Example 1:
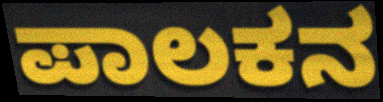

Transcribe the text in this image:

ಪಾಲಕನ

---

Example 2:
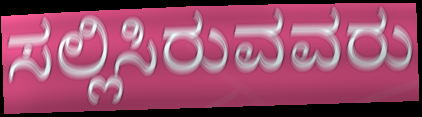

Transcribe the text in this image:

ಸಲ್ಲಿಸಿರುವವರು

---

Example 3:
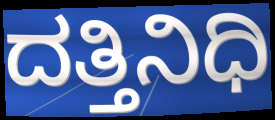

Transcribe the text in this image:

ದತ್ತಿನಿಧಿ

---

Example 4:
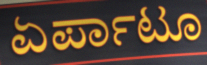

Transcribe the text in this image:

ಏರ್ಪಾಟೂ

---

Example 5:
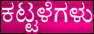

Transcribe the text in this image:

ಕಟ್ಟಳೆಗಳು